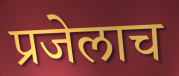
प्रजेलाच